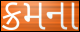
ક્રમના